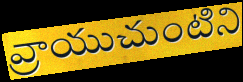
వ్రాయుచుంటిని